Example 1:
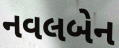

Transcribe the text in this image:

નવલબેન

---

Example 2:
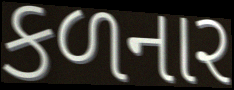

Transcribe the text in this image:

કળનાર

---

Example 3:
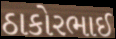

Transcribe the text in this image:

ઠાકોરભાઈ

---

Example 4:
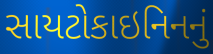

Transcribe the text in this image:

સાયટોકાઇનિનનું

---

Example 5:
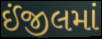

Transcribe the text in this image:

ઈંજીલમાં